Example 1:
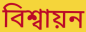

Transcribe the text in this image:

বিশ্বায়ন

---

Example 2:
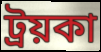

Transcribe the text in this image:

ট্রয়কা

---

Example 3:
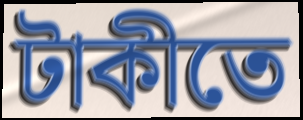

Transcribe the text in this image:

টাকীতে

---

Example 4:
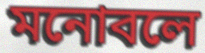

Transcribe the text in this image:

মনোবলে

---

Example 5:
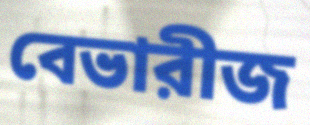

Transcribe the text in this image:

বেভারীজ